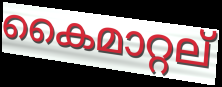
കൈമാറ്റല്